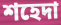
শহেদা